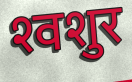
श्वशुर